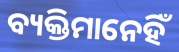
ବ୍ୟକ୍ତିମାନେହିଁ